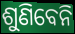
ଶୁଣିବେନି